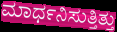
ಮಾರ್ಧನಿಸುತ್ತಿತ್ತು